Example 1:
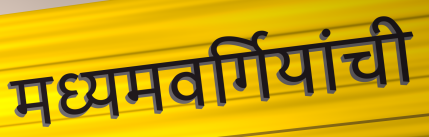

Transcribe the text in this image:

मध्यमवर्गियांची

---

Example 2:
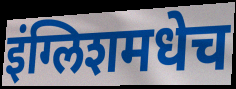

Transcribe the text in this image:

इंग्लिशमधेच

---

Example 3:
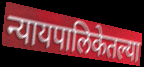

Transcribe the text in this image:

न्यायपालिकेतल्या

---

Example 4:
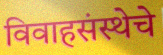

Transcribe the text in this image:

विवाहसंस्थेचे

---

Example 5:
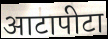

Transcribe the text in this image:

आटापीटा